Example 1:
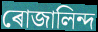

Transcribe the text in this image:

ৰোজালিন্দ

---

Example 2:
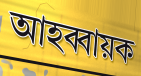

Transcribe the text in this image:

আহব্বায়ক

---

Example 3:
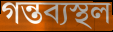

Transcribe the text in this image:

গন্তব্যস্থল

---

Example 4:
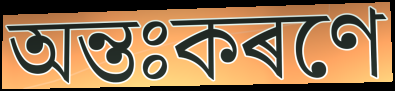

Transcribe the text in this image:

অন্তঃকৰণে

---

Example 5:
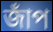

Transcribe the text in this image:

জাঁপ